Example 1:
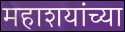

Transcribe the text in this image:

महाशयांच्या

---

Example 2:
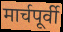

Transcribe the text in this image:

मार्चपूर्वी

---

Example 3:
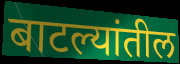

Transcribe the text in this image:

बाटल्यांतील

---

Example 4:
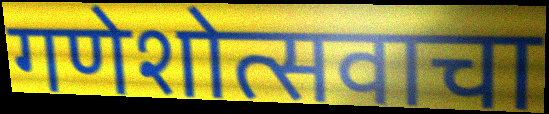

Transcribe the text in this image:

गणेशोत्सवाचा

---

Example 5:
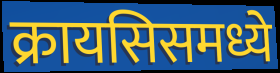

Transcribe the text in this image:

क्रायसिसमध्ये